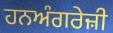
ਹਨਅੰਗਰੇਜ਼ੀ